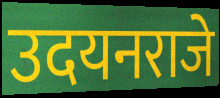
उदयनराजे